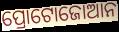
ପ୍ରୋଟୋଜୋଆନ